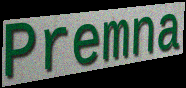
Premna